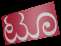
ಟೂ